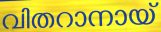
വിതറാനായ്